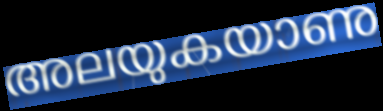
അലയുകയാണു